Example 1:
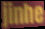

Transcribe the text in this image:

jinhe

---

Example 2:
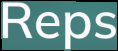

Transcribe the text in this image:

Reps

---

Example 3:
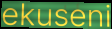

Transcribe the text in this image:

ekuseni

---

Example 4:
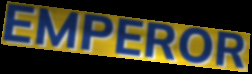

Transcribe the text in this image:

EMPEROR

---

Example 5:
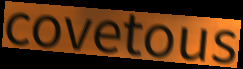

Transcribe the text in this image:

covetous